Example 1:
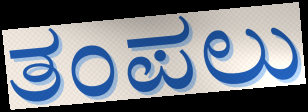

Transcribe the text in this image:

ತಂಪಲು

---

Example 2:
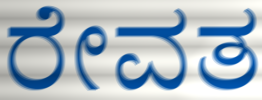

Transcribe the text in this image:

ರೇವತ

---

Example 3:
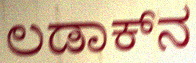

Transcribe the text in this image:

ಲಡಾಕ್‌ನ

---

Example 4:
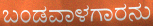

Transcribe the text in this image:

ಬಂಡವಾಳಗಾರನು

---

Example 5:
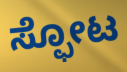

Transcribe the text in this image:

ಸ್ಫೋಟ